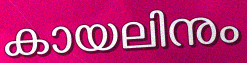
കായലിനും